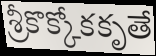
శ్రీకొక్కోకకృతే